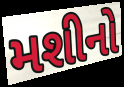
મશીનો